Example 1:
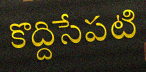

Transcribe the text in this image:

కొద్దిసేపటి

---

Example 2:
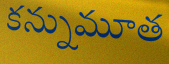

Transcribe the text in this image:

కన్నుమూత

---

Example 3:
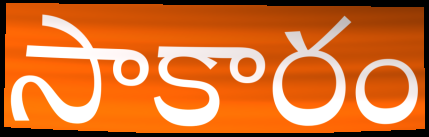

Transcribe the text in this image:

సాకారం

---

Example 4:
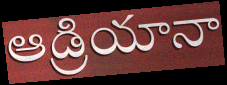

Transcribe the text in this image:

ఆడ్రియానా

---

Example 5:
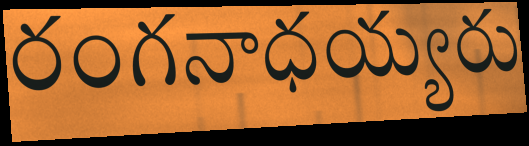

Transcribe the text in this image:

రంగనాధయ్యరు